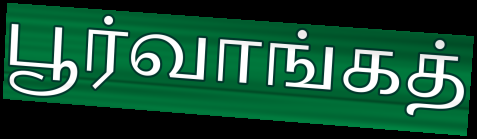
பூர்வாங்கத்